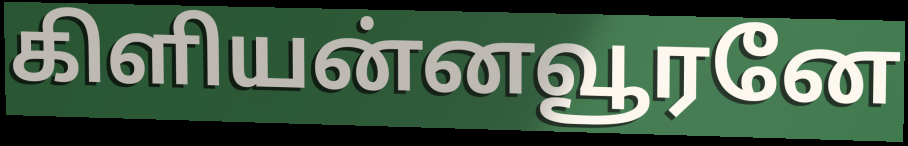
கிளியன்னவூரனே